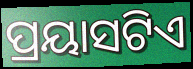
ପ୍ରୟାସଟିଏ